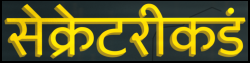
सेक्रेटरीकडं